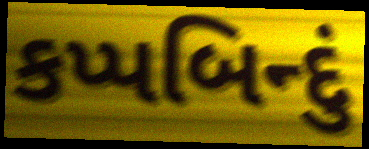
કપ્પબિન્દું